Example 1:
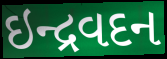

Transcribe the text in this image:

ઇન્દ્રવદન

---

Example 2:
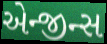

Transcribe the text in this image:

એન્જીન્સ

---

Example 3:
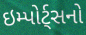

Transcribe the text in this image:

ઇમ્પોર્ટ્સનો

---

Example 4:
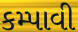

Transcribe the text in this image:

કમ્પાવી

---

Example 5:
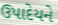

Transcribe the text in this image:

ઉપાદેયને